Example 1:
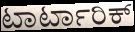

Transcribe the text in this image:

ಟಾರ್ಟಾರಿಕ್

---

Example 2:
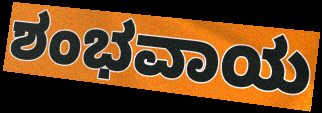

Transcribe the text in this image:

ಶಂಭವಾಯ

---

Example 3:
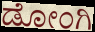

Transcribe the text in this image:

ಡೋಂಗಿ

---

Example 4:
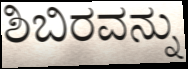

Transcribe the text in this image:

ಶಿಬಿರವನ್ನು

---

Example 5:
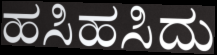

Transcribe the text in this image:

ಹಸಿಹಸಿದು